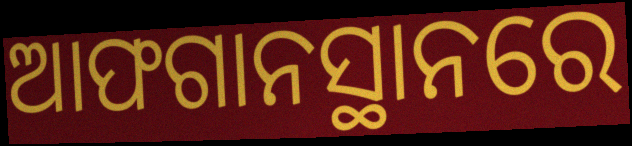
ଆଫଗାନସ୍ଥାନରେ